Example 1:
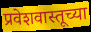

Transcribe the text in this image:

प्रवेशवास्तूच्या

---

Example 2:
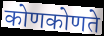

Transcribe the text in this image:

कोणकोणते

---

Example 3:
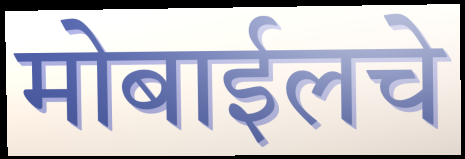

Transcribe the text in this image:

मोबाईलचे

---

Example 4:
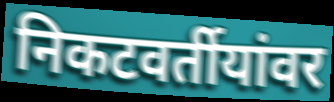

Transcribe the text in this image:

निकटवर्तीयांवर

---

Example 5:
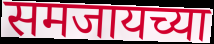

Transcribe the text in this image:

समजायच्या